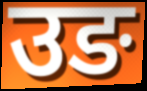
उङ